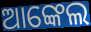
ଆଙ୍କେଲ